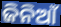
ଜିନିଆଁ